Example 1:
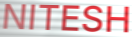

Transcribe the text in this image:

NITESH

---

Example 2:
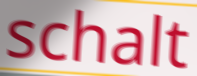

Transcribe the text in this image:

schalt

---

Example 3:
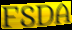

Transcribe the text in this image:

FSDA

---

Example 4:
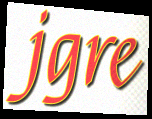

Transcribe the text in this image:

jgre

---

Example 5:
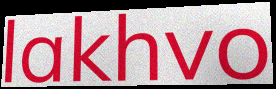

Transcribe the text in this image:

lakhvo